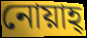
নোয়াহ্